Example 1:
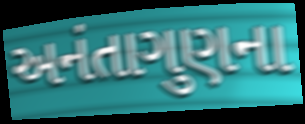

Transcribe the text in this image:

અનંતાગુણના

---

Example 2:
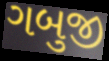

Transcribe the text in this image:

ગબુજી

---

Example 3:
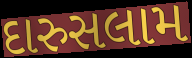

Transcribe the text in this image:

દારુસલામ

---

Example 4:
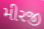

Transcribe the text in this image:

મીરજી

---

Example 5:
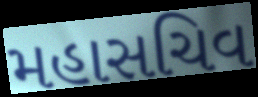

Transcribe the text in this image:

મહાસચિવ